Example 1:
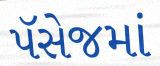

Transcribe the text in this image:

પૅસેજમાં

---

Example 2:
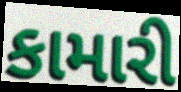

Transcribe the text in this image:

કામારી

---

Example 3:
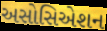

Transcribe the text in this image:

અસોસિએશન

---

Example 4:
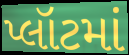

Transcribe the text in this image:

પ્લૉટમાં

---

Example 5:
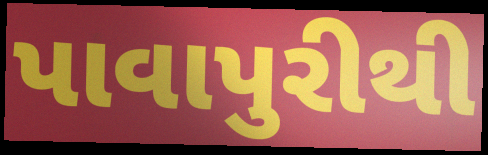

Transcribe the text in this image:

પાવાપુરીથી